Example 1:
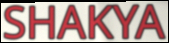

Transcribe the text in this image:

SHAKYA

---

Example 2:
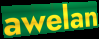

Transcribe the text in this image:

awelan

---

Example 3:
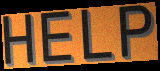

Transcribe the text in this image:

HELP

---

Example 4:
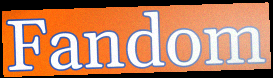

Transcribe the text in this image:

Fandom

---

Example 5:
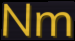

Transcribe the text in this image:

Nm